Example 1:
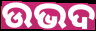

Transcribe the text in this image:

ଉଭଦ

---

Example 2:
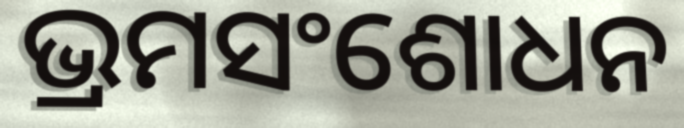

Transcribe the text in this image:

ଭ୍ରମସଂଶୋଧନ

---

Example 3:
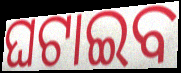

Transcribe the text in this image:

ଘଟାଇବ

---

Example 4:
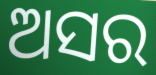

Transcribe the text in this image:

ଅସର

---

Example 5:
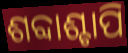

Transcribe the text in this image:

ଶବ୍ଦାଶ୍ଚାପି